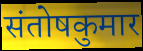
संतोषकुमार